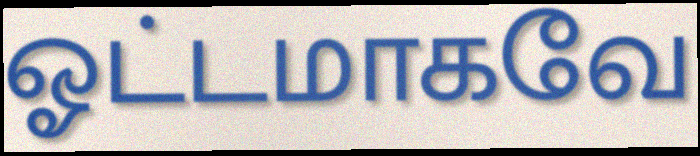
ஓட்டமாகவே